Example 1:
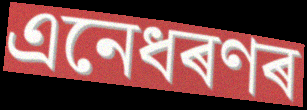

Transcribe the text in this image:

এনেধৰণৰ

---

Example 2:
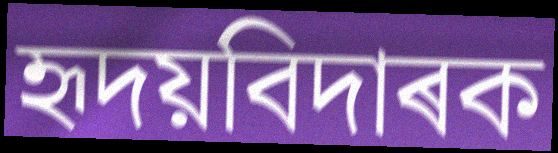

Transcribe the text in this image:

হৃদয়বিদাৰক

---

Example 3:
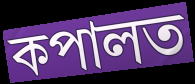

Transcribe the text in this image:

কপালত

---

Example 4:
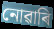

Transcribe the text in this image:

নোৱাৰি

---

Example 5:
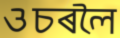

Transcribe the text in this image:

ওচৰলৈ